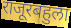
राजूरबहुला